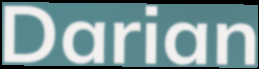
Darian